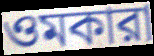
ওমকারা